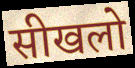
सीखलो